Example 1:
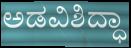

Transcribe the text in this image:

ಅಡವಿಶಿದ್ಧಾ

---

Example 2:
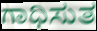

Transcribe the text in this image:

ಗಾಧಿಸುತ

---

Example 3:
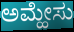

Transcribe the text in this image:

ಅಮ್ಹೇಸು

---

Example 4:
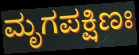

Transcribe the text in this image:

ಮೃಗಪಕ್ಷಿಣಃ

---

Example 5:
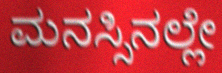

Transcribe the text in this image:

ಮನಸ್ಸಿನಲ್ಲೇ